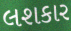
લશકાર